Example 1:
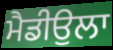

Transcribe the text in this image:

ਮੈਡੀਉਲਾ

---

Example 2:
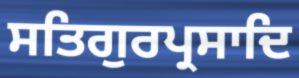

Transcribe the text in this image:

ਸਤਿਗੁਰਪ੍ਰਸਾਦਿ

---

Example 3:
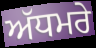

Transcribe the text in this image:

ਅੱਧਮਰੇ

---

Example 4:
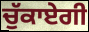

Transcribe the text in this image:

ਚੁੱਕਾਏਗੀ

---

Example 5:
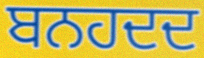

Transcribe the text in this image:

ਬਨਹਦਦ